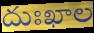
దుఃఖాల